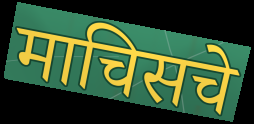
माचिसचे